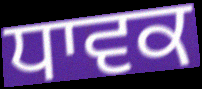
ਧਾਵਕ